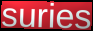
suries